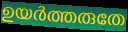
ഉയർത്തരുതേ